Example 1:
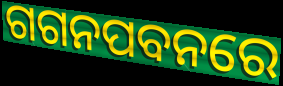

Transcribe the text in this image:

ଗଗନପବନରେ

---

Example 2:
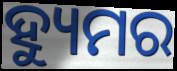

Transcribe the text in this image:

ହ୍ୟୁମର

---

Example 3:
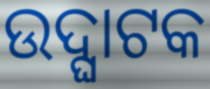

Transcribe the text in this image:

ଉଦ୍ଘାଟକ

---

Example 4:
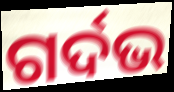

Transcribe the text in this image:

ଗର୍ଦଭ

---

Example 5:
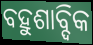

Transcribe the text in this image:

ବହୁଶାବ୍ଦିକ